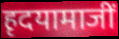
हृदयामाजीं